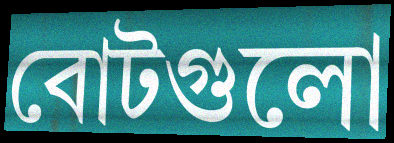
বোটগুলো